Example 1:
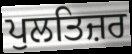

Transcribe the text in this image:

ਪੁਲਤਿਜ਼ਰ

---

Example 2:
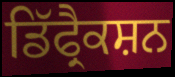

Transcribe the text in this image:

ਡਿੱਫ੍ਰੈਕਸ਼ਨ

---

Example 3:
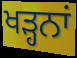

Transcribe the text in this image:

ਖੜ੍ਹਨਾਂ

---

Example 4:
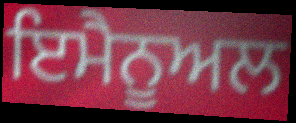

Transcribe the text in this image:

ਇਮੈਨੂਅਲ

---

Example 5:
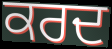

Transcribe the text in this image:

ਕਰਦ